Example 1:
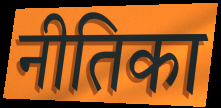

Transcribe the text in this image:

नीतिका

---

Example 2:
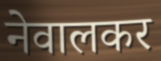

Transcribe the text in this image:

नेवालकर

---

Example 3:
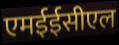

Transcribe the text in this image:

एमईईसीएल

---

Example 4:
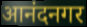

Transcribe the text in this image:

आनंदनगर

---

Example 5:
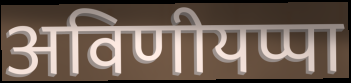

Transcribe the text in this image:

अविणीयप्पा